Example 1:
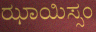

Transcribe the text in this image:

ಝಾಯಿಸ್ಸಂ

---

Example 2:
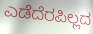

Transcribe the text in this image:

ಎಡೆದೆರಪಿಲ್ಲದ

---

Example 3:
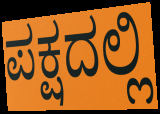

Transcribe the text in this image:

ಪಕ್ಷದಲ್ಲಿ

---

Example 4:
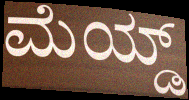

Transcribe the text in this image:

ಮೆಯ್ಡ್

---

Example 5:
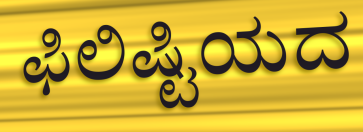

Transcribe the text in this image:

ಫಿಲಿಷ್ಟಿಯದ